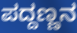
ಪದ್ದಣ್ಣನ